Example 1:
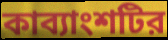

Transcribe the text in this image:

কাব্যাংশটির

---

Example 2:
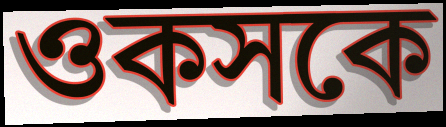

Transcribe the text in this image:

ওকসকে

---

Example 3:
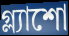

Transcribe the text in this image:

গ্ল্যাশো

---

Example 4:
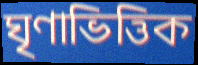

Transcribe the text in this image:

ঘৃণাভিত্তিক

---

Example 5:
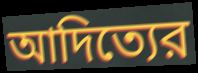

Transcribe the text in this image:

আদিত্যের